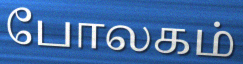
போலகம்